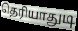
தெரியாதுடி